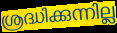
ശ്രദ്ധിക്കുന്നില്ല